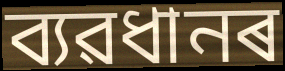
ব্যৱধানৰ